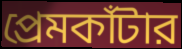
প্রেমকাঁটার